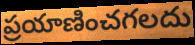
ప్రయాణించగలదు